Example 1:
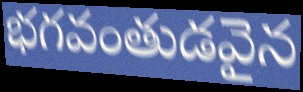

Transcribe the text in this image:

భగవంతుడవైన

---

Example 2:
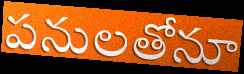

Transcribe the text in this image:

పనులతోనూ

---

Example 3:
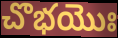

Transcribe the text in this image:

చొభయొః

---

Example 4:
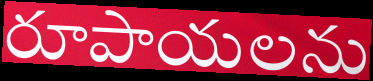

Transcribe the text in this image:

రూపాయలను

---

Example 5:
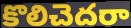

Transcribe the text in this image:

కొలిచెదరా